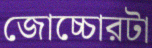
জোচ্চোরটা